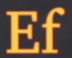
Ef